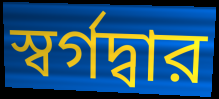
স্বর্গদ্বার